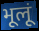
भूलूं